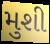
મુશી